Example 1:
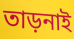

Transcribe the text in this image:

তাড়নাই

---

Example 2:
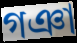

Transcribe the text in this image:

গঞা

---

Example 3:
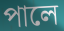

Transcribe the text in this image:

পালে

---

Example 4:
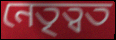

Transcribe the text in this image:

নেতৃত্বত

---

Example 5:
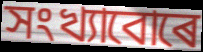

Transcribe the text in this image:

সংখ্যাবোৰে